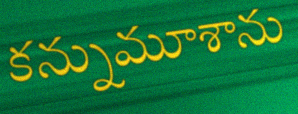
కన్నుమూశాను